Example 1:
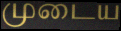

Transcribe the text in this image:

முடைய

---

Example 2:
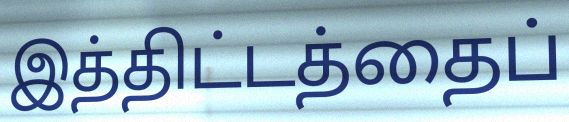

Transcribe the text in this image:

இத்திட்டத்தைப்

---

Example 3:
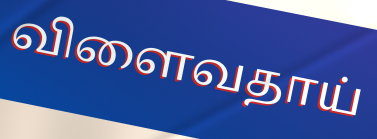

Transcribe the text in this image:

விளைவதாய்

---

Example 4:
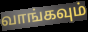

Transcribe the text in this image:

வாங்கவும்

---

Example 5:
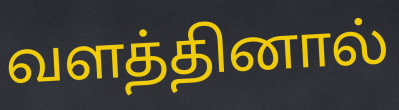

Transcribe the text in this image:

வளத்தினால்